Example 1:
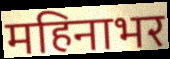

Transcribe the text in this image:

महिनाभर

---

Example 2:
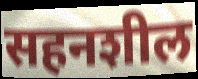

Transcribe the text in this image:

सहनशील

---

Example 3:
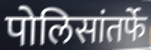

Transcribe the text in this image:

पोलिसांतर्फे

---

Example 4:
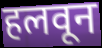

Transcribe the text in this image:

हलवून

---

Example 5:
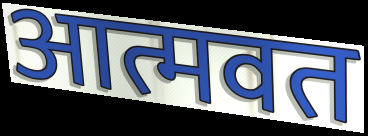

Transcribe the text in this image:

आत्मवत